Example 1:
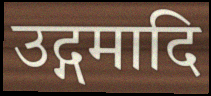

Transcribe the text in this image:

उद्गमादि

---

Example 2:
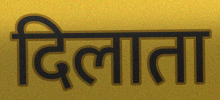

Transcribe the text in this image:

दिलाता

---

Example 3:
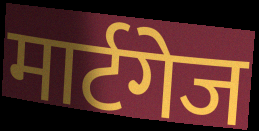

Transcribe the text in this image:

मार्टगेज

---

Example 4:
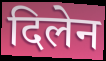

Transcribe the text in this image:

दिलेन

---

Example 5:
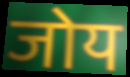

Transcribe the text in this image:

जोय